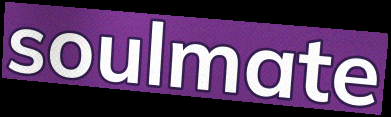
soulmate